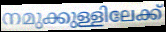
നമുക്കുള്ളിലേക്ക്